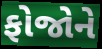
ફોજોને